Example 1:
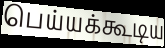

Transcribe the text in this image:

பெய்யக்கூடிய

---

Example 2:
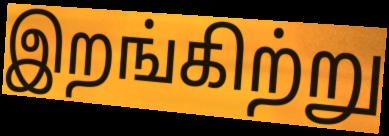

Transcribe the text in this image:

இறங்கிற்று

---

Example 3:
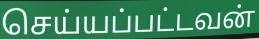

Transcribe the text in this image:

செய்யப்பட்டவன்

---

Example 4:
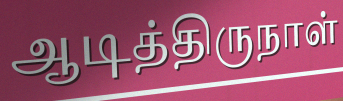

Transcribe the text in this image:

ஆடித்திருநாள்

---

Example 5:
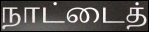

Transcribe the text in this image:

நாட்டைத்